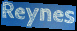
Reynes